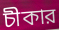
চীকার